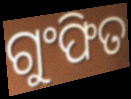
ଗୁଂଫିତ